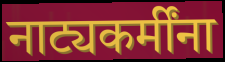
नाट्यकर्मींना